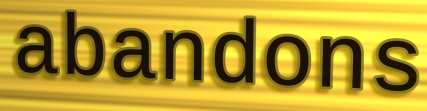
abandons